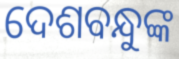
ଦେଶବନ୍ଧୁଙ୍କ